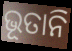
ଭୂତାନି